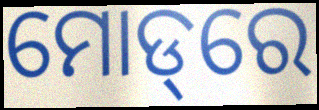
ମୋଡ୍‌ରେ